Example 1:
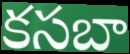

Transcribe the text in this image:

కసబా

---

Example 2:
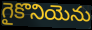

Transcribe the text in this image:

గైకొనియెను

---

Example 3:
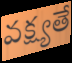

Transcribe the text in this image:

వక్ష్యతే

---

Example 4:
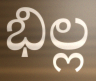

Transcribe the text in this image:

భిల్ల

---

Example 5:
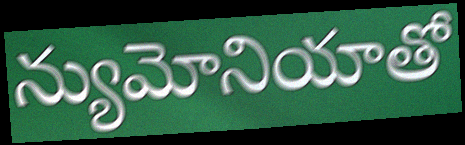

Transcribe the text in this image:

న్యుమోనియాతో